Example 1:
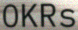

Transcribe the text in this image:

OKRs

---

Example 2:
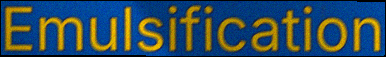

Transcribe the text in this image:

Emulsification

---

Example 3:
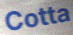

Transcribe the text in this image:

Cotta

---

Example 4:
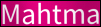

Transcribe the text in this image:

Mahtma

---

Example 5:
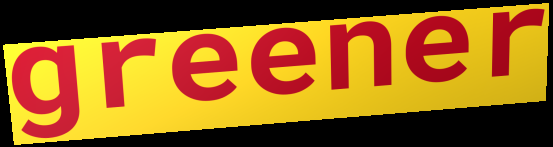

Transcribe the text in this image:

greener